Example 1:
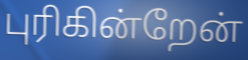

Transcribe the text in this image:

புரிகின்றேன்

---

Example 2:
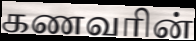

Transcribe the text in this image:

கணவரின்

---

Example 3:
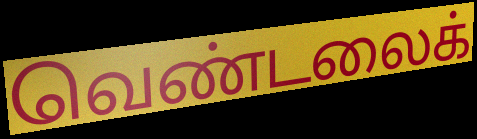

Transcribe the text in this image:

வெண்டலைக்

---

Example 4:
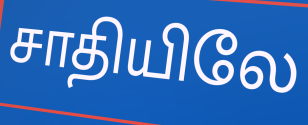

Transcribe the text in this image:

சாதியிலே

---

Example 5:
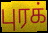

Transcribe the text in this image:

புரக்